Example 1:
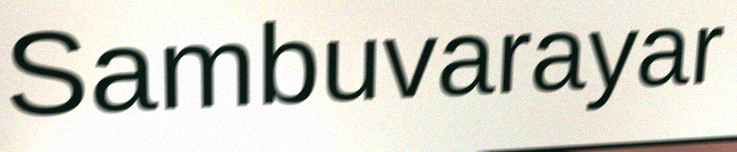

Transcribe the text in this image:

Sambuvarayar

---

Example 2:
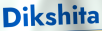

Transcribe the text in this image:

Dikshita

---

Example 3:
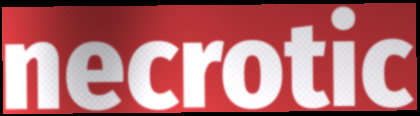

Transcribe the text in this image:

necrotic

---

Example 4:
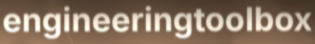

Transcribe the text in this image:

engineeringtoolbox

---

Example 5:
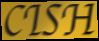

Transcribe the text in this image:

CISH